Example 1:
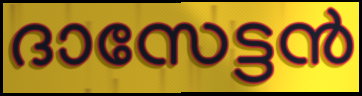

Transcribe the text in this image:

ദാസേട്ടൻ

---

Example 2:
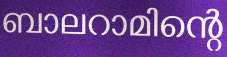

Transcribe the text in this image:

ബാലറാമിന്റെ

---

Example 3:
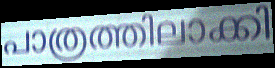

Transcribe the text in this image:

പാത്രത്തിലാക്കി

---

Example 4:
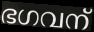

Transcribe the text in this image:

ഭഗവന്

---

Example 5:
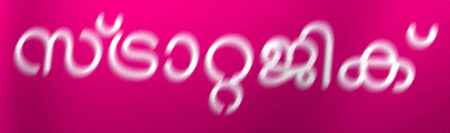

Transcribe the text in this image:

സ്ട്രാറ്റജിക്